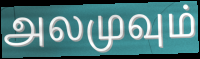
அலமுவும்